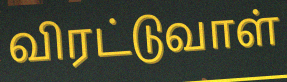
விரட்டுவாள்